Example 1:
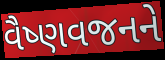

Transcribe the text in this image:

વૈષ્ણવજનને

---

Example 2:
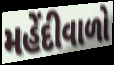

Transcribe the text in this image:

મહેંદીવાળો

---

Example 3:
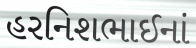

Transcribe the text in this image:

હરનિશભાઈનાં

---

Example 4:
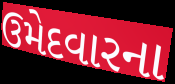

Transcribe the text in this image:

ઉમેદવારના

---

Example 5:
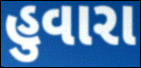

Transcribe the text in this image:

હુવારા